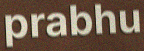
prabhu